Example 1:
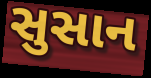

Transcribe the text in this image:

સુસાન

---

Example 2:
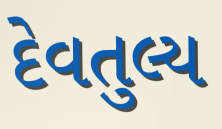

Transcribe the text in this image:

દેવતુલ્ય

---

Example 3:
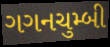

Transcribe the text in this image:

ગગનચુમ્બી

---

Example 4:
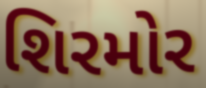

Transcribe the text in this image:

શિરમોર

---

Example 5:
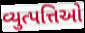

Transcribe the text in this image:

વ્યુત્પત્તિઓ